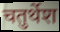
चतुर्थेश